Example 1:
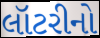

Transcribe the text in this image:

લૉટરીનો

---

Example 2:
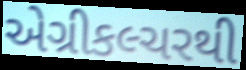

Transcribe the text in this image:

એગ્રીકલ્ચરથી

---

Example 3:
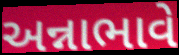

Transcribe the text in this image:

અન્નાભાવે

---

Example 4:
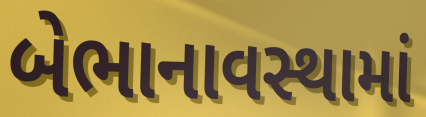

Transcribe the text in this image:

બેભાનાવસ્થામાં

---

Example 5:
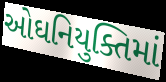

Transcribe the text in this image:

ઓઘનિયુક્તિમાં